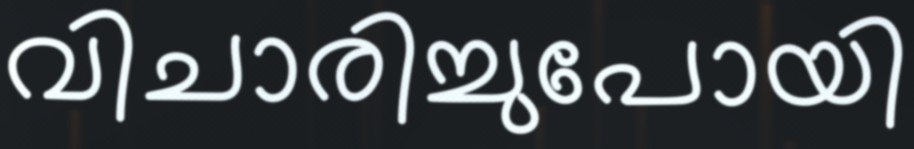
വിചാരിച്ചുപോയി